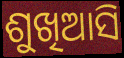
ଶୁଖିଆସି